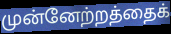
முன்னேற்றத்தைக்